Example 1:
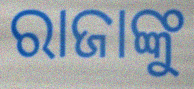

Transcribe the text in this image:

ରାଜାଙ୍କୁ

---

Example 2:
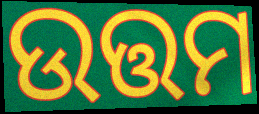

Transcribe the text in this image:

ଉତ୍ତମ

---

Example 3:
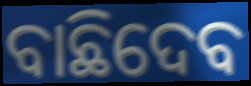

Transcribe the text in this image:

ବାଛିଦେବ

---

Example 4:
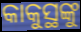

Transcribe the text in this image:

କାକୁସ୍ଥଙ୍କୁ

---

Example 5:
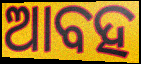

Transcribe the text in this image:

ଆବହ